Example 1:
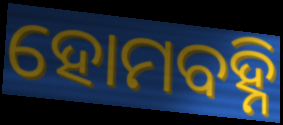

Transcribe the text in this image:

ହୋମବହ୍ନି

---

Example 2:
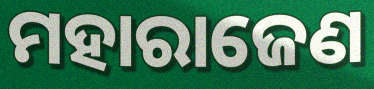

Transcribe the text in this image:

ମହାରାଜେଣ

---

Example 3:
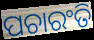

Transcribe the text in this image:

ପଚାରଂତି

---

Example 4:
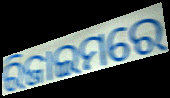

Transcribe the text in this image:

ରିଜାଇମରେ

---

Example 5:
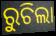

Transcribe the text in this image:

ରୁଚିଲା